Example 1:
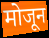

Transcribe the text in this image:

मोजून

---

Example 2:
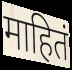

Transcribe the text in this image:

माहितं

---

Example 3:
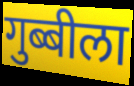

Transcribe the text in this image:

गुब्बीला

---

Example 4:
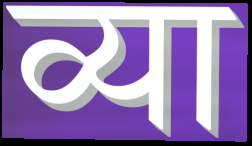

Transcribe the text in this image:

व्या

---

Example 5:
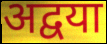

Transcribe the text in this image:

अद्वया